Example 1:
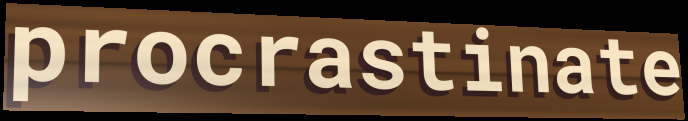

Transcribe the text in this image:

procrastinate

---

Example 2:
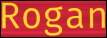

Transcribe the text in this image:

Rogan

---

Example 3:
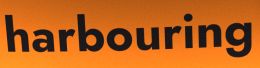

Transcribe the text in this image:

harbouring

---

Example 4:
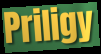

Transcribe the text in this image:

Priligy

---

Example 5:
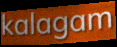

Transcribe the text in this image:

kalagam